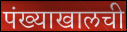
पंख्याखालची